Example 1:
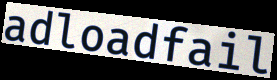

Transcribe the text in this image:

adloadfail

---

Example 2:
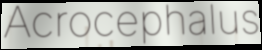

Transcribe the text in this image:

Acrocephalus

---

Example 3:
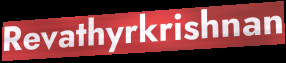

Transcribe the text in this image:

Revathyrkrishnan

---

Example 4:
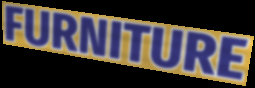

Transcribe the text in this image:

FURNITURE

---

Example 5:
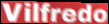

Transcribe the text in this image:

Vilfredo